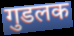
गुडलक